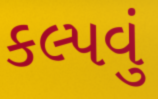
કલ્પવું